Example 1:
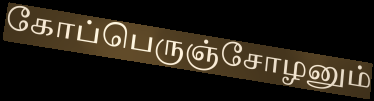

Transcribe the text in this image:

கோப்பெருஞ்சோழனும்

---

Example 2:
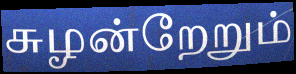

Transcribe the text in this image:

சுழன்றேறும்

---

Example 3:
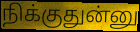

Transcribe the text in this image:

நிக்குதுன்னு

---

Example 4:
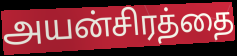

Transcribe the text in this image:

அயன்சிரத்தை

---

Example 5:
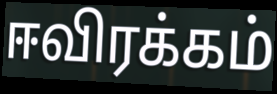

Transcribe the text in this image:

ஈவிரக்கம்